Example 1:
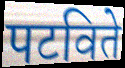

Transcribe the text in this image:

पटविते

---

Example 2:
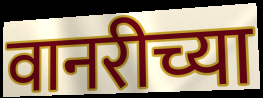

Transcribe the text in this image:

वानरीच्या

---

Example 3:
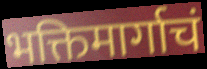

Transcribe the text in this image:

भक्तिमार्गाचं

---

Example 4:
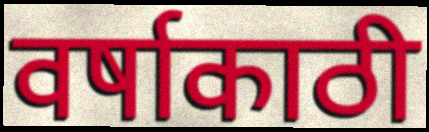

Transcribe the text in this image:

वर्षाकाठी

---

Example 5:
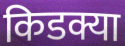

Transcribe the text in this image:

किडक्या